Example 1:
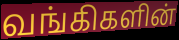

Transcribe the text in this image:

வங்கிகளின்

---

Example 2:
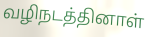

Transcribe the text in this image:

வழிநடத்தினாள்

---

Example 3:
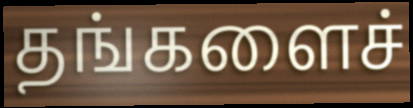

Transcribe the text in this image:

தங்களைச்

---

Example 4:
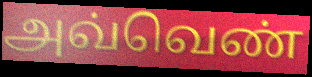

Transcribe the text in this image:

அவ்வெண்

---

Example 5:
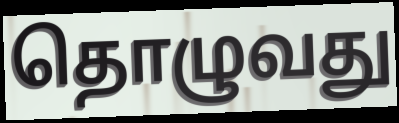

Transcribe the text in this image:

தொழுவது